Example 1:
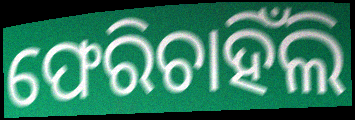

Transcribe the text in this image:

ଫେରିଚାହିଁଲି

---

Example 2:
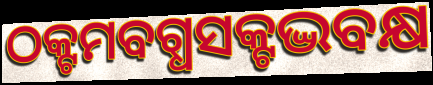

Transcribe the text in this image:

ଠକ୍ଟମବଗ୍ଧସକ୍ଟଦ୍ଭବକ୍ଷ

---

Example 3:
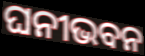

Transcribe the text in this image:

ଘନୀଭବନ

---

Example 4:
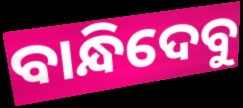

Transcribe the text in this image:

ବାନ୍ଧିଦେବୁ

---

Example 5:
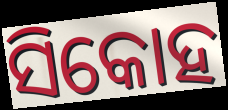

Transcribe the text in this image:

ସିକୋହ